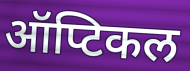
ऑप्टिकल